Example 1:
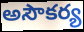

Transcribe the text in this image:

అసౌకర్య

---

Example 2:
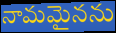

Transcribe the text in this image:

నామమైనను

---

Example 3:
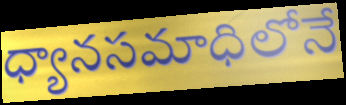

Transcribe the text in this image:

ధ్యానసమాధిలోనే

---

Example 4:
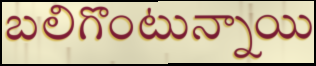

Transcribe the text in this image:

బలిగొంటున్నాయి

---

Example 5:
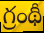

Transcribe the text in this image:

గ్రంథీ